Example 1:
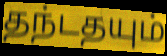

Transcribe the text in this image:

தந்டதயும்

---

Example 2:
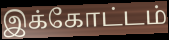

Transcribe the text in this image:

இக்கோட்டம்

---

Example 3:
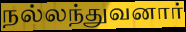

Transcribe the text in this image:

நல்லந்துவனார்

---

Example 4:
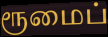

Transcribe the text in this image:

ரூமைப்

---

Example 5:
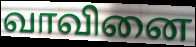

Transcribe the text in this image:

வாவினை